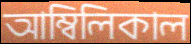
আম্বিলিকাল